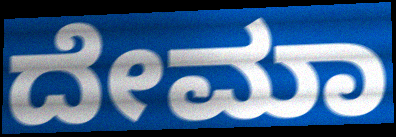
ದೇಮಾ